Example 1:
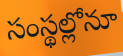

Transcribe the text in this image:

సంస్థల్లోనూ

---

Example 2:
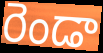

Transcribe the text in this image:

రెండా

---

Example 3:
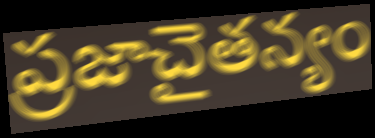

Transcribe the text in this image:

ప్రజాచైతన్యం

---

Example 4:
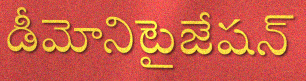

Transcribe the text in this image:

డీమోనిటైజేషన్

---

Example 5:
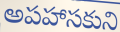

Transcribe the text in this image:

అపహాసకుని